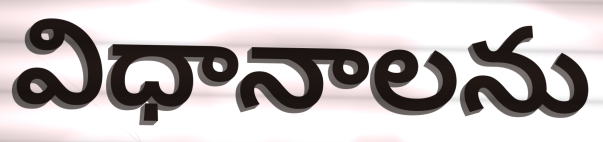
విధానాలను